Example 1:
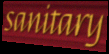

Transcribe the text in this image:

sanitary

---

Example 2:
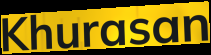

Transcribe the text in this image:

Khurasan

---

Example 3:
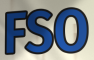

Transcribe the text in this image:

FSO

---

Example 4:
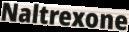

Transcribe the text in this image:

Naltrexone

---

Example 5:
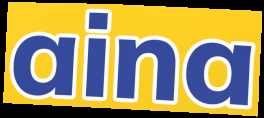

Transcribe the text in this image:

aina